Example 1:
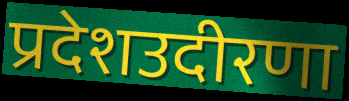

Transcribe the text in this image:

प्रदेशउदीरणा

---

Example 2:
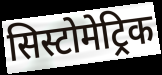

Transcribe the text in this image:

सिस्टोमेट्रिक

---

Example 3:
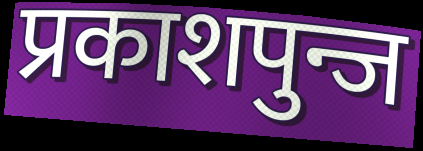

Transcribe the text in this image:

प्रकाशपुन्ज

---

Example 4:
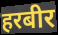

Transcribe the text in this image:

हरबीर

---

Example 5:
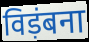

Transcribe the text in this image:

विड़ंबना